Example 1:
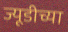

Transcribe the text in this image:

ज्यूडीच्या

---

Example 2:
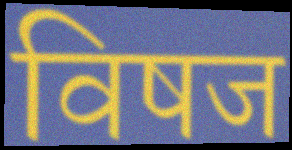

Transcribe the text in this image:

विषज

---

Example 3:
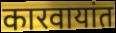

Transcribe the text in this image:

कारवायांत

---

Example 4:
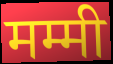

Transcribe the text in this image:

मम्मी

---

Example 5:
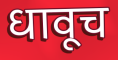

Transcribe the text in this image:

धावूच